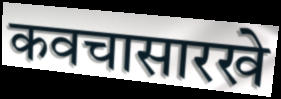
कवचासारखे